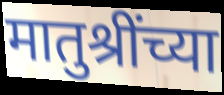
मातुश्रींच्या